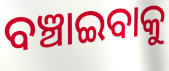
ବଞ୍ଚାଇବାକୁ